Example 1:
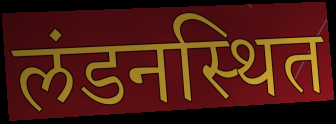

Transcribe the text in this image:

लंडनस्थित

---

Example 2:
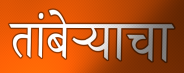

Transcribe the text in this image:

तांबेऱ्याचा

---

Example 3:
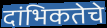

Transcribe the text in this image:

दांभिकतेचे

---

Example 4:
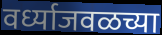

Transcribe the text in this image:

वर्ध्याजवळच्या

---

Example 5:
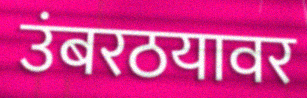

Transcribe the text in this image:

उंबरठयावर